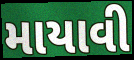
માયાવી